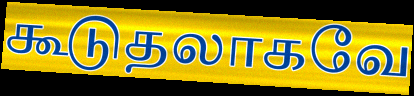
கூடுதலாகவே